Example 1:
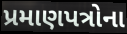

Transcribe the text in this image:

પ્રમાણપત્રોના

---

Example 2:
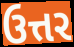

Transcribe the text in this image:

ઉત્તર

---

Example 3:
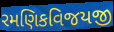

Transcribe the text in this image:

રમણિકવિજયજી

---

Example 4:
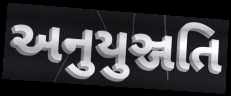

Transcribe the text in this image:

અનુયુઞ્જતિ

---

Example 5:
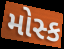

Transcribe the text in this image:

મોસ્ક